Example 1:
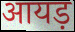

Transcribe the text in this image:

आयड़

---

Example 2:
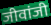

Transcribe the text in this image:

जीवांजी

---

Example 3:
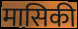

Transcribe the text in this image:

मासिकी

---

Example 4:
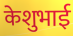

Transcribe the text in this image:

केशुभाई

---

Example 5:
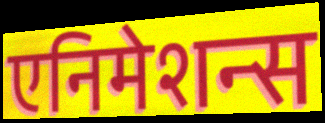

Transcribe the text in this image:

एनिमेशन्स